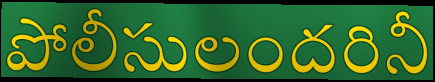
పోలీసులందరినీ